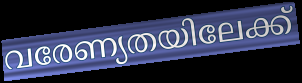
വരേണ്യതയിലേക്ക്